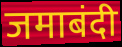
जमाबंदी